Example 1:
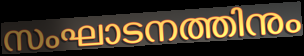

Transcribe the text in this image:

സംഘാടനത്തിനും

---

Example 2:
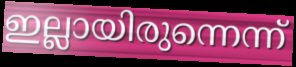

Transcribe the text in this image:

ഇല്ലായിരുന്നെന്ന്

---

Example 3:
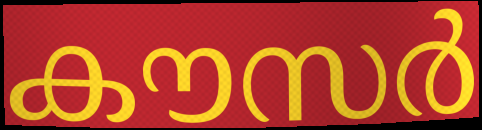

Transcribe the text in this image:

കൗസർ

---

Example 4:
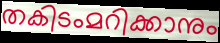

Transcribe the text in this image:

തകിടംമറിക്കാനും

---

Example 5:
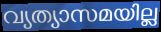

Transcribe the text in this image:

വ്യത്യാസമയില്ല